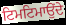
ਟਿਮਟਿਮਾਉਂਦੇ